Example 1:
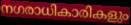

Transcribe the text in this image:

നഗരാധികാരികളും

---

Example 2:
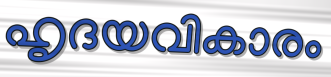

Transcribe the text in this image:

ഹൃദയവികാരം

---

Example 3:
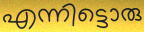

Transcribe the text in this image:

എന്നിട്ടൊരു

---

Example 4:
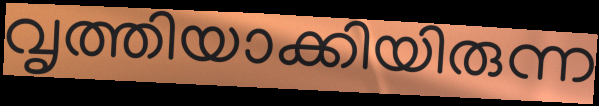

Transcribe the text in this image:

വൃത്തിയാക്കിയിരുന്ന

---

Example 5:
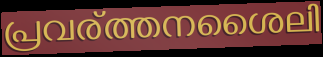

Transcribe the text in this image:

പ്രവര്ത്തനശൈലി